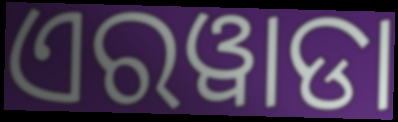
ଏରୱାଡା